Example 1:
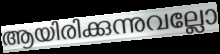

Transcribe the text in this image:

ആയിരിക്കുന്നുവല്ലോ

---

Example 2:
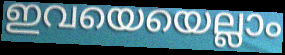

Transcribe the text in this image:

ഇവയെയെല്ലാം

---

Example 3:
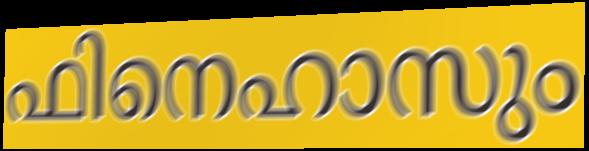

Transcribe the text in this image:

ഫിനെഹാസും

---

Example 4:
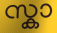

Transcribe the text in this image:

സ്കാ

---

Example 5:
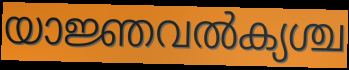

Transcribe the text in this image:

യാജ്ഞവൽക്യശ്ച